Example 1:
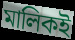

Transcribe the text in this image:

মালিকই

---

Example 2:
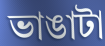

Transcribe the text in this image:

ভাঙাটা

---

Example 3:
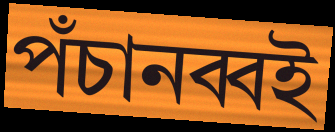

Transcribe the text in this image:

পঁচানব্বই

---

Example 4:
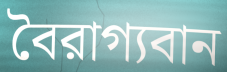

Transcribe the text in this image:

বৈরাগ্যবান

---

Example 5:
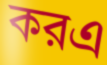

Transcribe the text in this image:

করএ